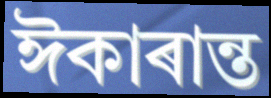
ঈকাৰান্ত